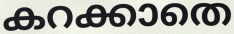
കറക്കാതെ